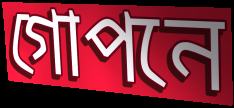
গোপনে